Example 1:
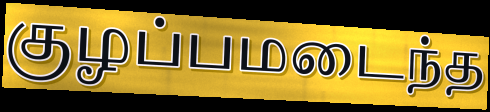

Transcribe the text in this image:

குழப்பமடைந்த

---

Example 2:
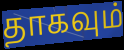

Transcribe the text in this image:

தாகவும்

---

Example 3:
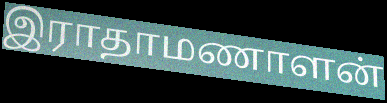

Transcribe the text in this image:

இராதாமணாளன்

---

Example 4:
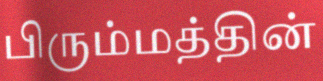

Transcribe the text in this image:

பிரும்மத்தின்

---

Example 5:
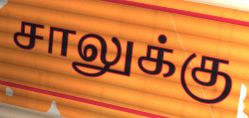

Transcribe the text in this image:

சாலுக்கு